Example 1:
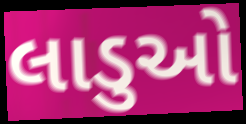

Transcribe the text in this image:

લાડુઓ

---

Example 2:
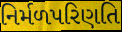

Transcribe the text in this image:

નિર્મળપરિણતિ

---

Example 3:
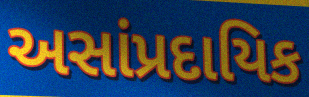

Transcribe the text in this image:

અસાંપ્રદાયિક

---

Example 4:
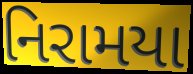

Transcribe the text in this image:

નિરામયા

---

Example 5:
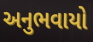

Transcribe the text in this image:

અનુભવાયો